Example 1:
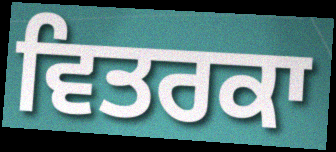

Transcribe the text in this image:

ਵਿਤਰਕਾ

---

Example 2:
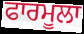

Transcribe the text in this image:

ਫਾਰਮੂਲਾ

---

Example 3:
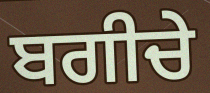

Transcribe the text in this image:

ਬਗੀਚੇ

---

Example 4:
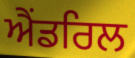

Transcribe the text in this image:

ਐਂਡਰਿਲ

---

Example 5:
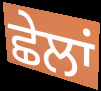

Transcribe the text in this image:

ਛੇਲਾਂ